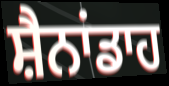
ਸ਼ੈਨਾਂਡਾਹ